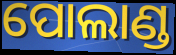
ପୋଲାଣ୍ଡ